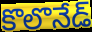
కొలొనేడ్